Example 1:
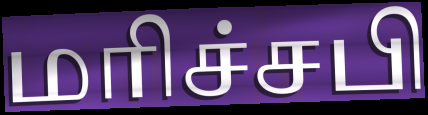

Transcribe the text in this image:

மரிச்சபி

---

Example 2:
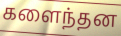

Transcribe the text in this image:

களைந்தன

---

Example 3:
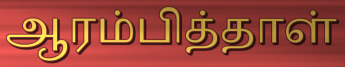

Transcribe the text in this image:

ஆரம்பித்தாள்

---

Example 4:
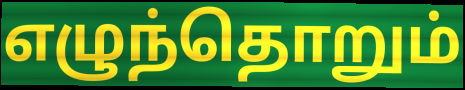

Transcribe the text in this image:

எழுந்தொறும்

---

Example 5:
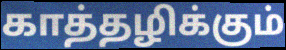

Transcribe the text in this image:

காத்தழிக்கும்